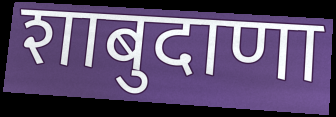
शाबुदाणा